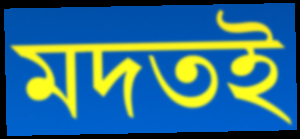
মদতই